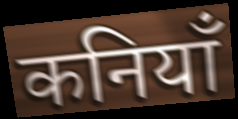
कनियाँ